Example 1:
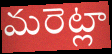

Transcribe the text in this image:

మరెట్లా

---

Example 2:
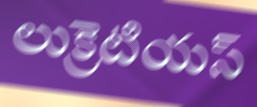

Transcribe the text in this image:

లుక్రెటియస్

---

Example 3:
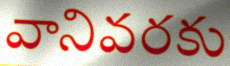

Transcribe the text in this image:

వానివరకు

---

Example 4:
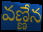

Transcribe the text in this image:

వణ్ణేన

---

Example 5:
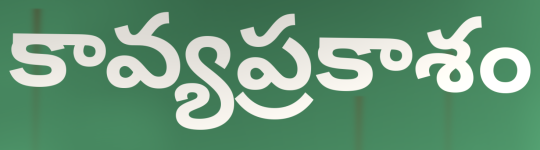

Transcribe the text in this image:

కావ్యప్రకాశం